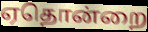
ஏதொன்றை